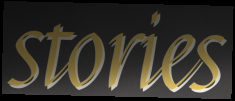
stories